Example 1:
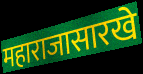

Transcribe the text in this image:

महाराजासारखे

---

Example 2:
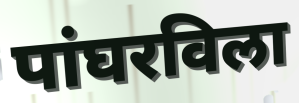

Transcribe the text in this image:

पांघरविला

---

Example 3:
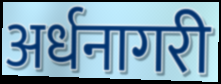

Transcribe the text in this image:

अर्धनागरी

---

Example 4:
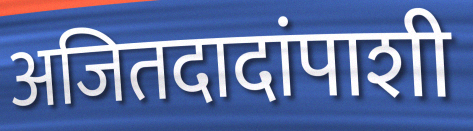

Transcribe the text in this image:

अजितदादांपाशी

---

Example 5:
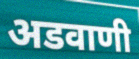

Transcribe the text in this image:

अडवाणी